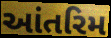
આંતરિમ